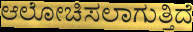
ಆಲೋಚಿಸಲಾಗುತ್ತಿದೆ